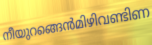
നീയുറങ്ങെൻമിഴിവണ്ടിണ